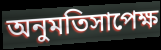
অনুমতিসাপেক্ষ